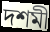
দশমী